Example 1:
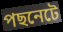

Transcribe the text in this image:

পছনেটে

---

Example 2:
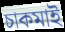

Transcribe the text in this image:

চাকমাই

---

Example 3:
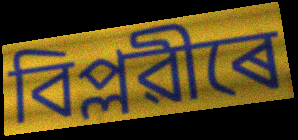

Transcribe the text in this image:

বিপ্লৱীৰে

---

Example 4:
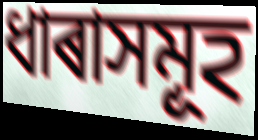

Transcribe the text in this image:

ধাৰাসমূহ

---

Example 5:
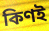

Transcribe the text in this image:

কিণই